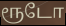
ரூடோ